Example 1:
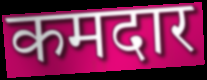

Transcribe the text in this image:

कमदार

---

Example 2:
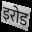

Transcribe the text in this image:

इरोड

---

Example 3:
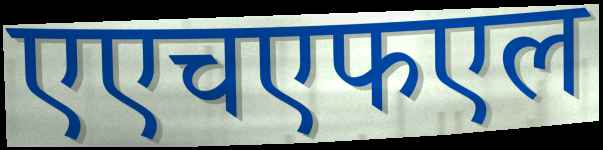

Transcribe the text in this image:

एएचएफएल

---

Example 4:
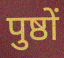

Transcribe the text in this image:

पुष्ठों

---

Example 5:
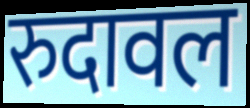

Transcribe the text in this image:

रुदावल